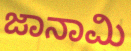
ಜಾನಾಮಿ